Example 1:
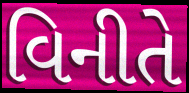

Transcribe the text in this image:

વિનીતે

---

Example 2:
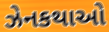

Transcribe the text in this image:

ઝેનકથાઓ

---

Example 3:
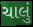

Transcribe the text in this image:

ચાલું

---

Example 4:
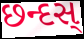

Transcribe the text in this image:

છન્દસ્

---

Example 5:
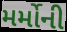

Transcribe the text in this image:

મર્મોની